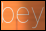
bey